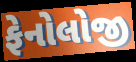
ફેનોલોજી